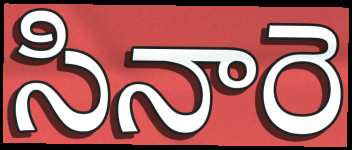
సినారె